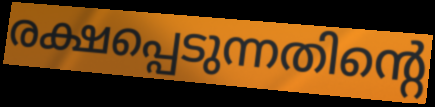
രക്ഷപ്പെടുന്നതിന്റെ